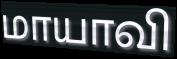
மாயாவி